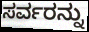
ಸರ್ವರನ್ನು